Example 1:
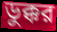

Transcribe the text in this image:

ডুক্কর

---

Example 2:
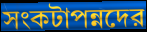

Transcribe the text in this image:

সংকটাপন্নদের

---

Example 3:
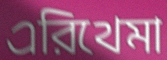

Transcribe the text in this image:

এরিথেমা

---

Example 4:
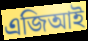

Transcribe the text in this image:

এজিআই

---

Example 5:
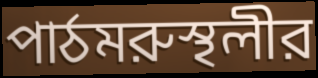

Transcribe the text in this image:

পাঠমরুস্থলীর